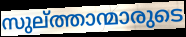
സുല്ത്താന്മാരുടെ